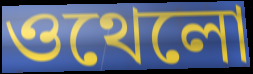
ওথেলো